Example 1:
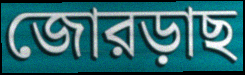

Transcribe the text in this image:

জোরড়াছ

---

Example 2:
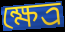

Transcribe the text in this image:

ক্ষেত্র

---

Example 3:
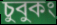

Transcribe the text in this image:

চুবুকং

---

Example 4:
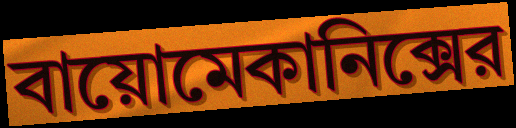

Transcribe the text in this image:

বায়োমেকানিক্সের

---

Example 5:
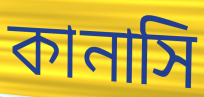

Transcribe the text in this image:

কানাসি